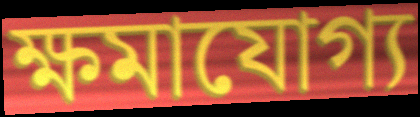
ক্ষমাযোগ্য